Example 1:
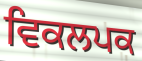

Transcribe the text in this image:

ਵਿਕਲਪਕ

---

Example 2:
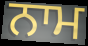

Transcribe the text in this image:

ਨਾਮ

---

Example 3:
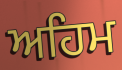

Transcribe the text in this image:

ਅਹਿਮ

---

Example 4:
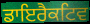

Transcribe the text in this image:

ਡਾਇਰੈਕਟਿਵ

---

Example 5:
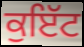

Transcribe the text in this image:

ਕੁਇੱਟ